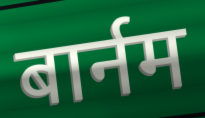
बार्नम